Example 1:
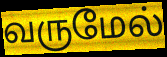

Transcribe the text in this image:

வருமேல்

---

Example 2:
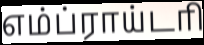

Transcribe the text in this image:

எம்ப்ராய்டரி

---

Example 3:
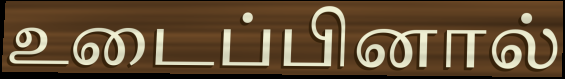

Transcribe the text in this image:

உடைப்பினால்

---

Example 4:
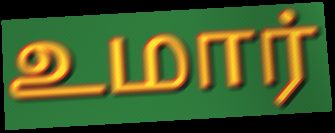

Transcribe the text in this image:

உமார்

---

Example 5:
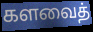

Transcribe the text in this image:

களவைத்